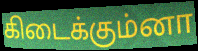
கிடைக்கும்னா